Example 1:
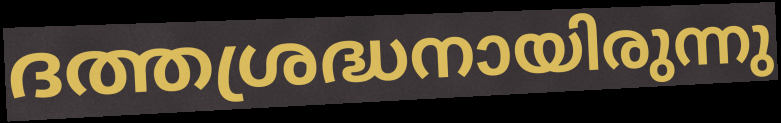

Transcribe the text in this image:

ദത്തശ്രദ്ധനായിരുന്നു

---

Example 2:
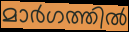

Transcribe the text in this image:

മാർഗത്തിൽ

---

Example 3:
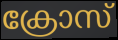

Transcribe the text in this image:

ക്രോസ്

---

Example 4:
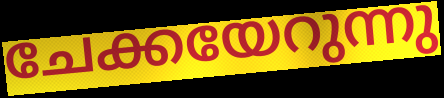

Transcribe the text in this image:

ചേക്കയേറുന്നു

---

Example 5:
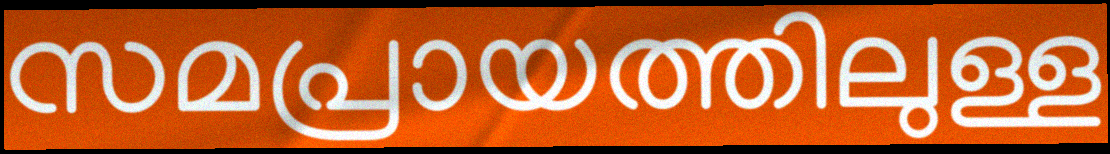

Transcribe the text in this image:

സമപ്രായത്തിലുള്ള